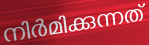
നിർമിക്കുന്നത്